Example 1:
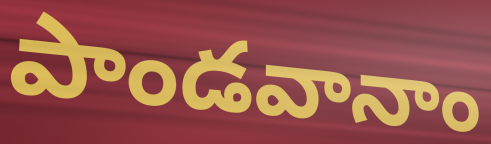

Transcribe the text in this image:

పాండవానాం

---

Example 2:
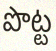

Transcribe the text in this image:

పొట్ట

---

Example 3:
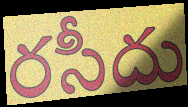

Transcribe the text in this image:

రసీదు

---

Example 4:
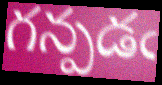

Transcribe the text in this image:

గన్పడఁ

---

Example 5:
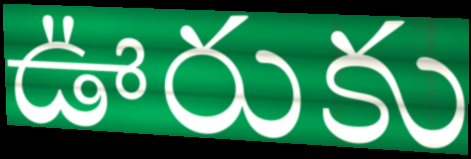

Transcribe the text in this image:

ఊరుకు